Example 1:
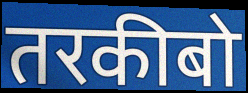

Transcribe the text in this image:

तरकीबो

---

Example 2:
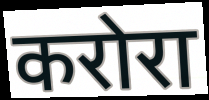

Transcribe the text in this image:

करोरा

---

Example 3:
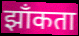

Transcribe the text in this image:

झाँकता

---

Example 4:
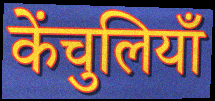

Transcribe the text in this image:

केंचुलियाँ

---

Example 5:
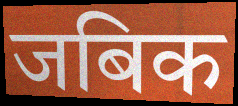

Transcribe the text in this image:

जबिक